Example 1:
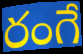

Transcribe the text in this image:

రంగే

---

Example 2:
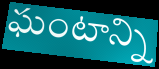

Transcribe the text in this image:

ఘంటాన్ని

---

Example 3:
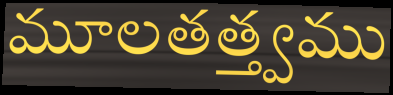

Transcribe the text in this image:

మూలతత్త్వము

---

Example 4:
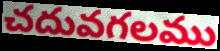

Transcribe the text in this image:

చదువగలము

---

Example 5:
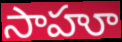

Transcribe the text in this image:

సాహూ